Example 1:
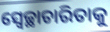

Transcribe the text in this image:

ସ୍ଵେଚ୍ଛାଚାରିତାକୁ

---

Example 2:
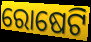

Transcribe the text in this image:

ରୋଷେଟି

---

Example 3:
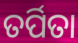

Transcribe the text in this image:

ତର୍ପିତା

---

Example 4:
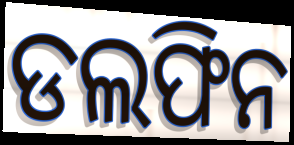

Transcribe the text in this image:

ଡଲଫିନ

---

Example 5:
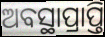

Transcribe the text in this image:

ଅବସ୍ଥାପ୍ରାପ୍ତି